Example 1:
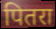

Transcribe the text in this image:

पितरा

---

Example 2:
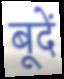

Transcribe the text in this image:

बूदें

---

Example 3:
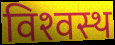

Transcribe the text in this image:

विश्वस्थ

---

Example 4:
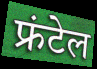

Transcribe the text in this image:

फ्रंटेल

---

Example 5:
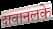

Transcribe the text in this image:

दावानलके